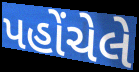
પહોંચેલે